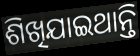
ଶିଖିଯାଇଥାନ୍ତି